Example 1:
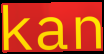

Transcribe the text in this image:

kan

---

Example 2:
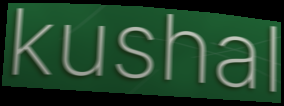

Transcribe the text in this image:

kushal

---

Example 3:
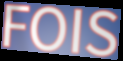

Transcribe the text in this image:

FOIS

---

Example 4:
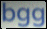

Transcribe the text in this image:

bgg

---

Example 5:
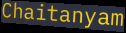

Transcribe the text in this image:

Chaitanyam